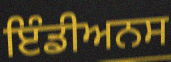
ਇੰਡੀਅਨਸ